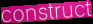
construct